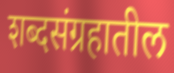
शब्दसंग्रहातील